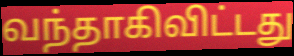
வந்தாகிவிட்டது